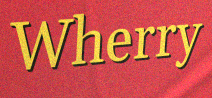
Wherry